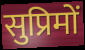
सुप्रिमों